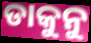
ଡାକୁନୁ